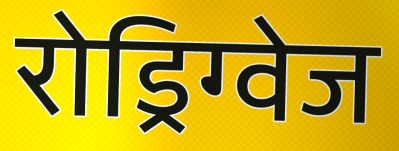
रोड्रिग्वेज